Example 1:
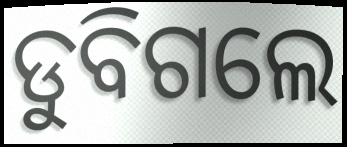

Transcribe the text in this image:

ଡୁବିଗଲେ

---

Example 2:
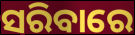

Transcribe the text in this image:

ସରିବାରେ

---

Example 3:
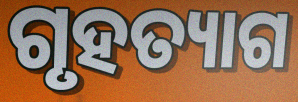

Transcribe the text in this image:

ଗୃହତ୍ୟାଗ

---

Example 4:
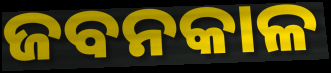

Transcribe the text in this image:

ଜବନକାଳ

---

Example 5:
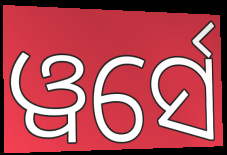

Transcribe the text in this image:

ୱର୍ସେ